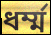
ধৰ্ম্ম